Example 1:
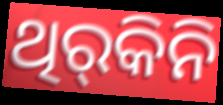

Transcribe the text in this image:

ଥିର୍‍କିନି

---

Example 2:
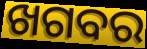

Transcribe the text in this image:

ଖଗବର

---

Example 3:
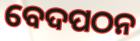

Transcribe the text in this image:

ବେଦପଠନ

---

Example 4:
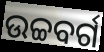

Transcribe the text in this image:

ଉଚ୍ଚବର୍ଗ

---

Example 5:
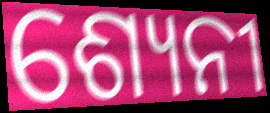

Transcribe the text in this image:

ଶ୍ୟେନୀ